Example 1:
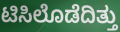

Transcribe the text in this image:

ಟಿಸಿಲೊಡೆದಿತ್ತು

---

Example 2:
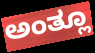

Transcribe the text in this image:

ಅಂತ್ಲೂ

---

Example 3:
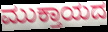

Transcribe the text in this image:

ಮುಕ್ತಾಯದ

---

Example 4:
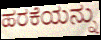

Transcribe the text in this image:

ಹರಕೆಯನ್ನು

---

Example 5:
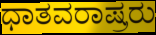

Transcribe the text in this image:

ಧಾತವರಾಷ್ರರು